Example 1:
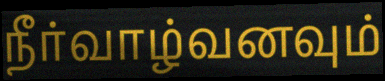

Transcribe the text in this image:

நீர்வாழ்வனவும்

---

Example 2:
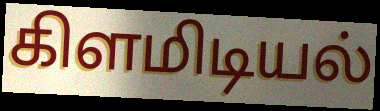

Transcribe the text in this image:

கிளமிடியல்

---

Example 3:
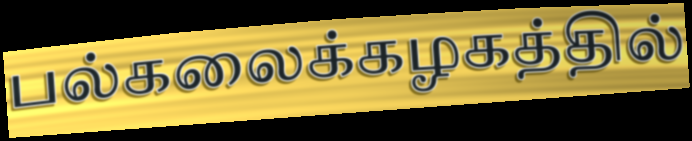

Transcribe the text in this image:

பல்கலைக்கழகத்தில்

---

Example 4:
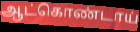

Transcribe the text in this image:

ஆட்கொண்டாய்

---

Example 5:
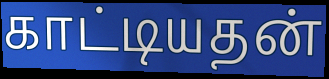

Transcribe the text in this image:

காட்டியதன்